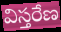
విస్తరేణ